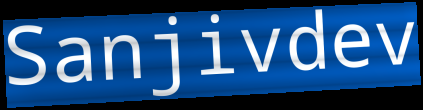
Sanjivdev